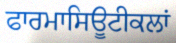
ਫਾਰਮਾਸਿਊਟੀਕਲਾਂ